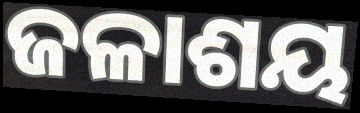
ଜଳାଶୟ